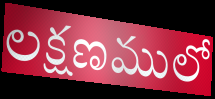
లక్షణములో